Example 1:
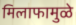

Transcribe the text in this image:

मिलाफामुळे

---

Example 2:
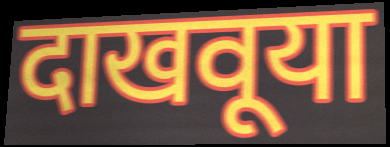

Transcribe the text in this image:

दाखवूया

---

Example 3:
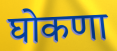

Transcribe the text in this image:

घोकणा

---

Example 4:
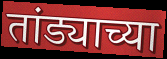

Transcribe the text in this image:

तांड्याच्या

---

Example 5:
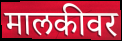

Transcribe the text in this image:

मालकीवर